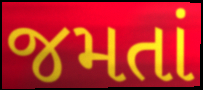
જમતાં